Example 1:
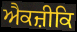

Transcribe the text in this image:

ਐਕਜ਼ੀਕਿ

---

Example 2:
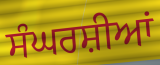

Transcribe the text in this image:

ਸੰਘਰਸ਼ੀਆਂ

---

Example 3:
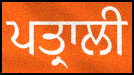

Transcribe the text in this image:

ਪਤ੍ਰਾਲੀ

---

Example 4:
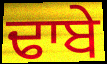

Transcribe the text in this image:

ਢਾਬੇ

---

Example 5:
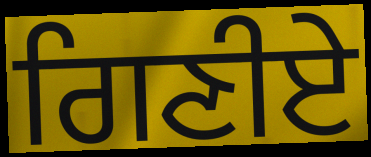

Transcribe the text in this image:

ਗਿਣੀਏ